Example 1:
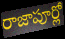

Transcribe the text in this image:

రాజాపూర్లో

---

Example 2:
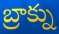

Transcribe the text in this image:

బ్రాక్ను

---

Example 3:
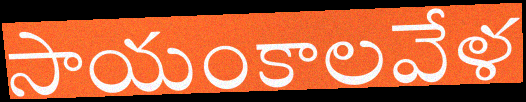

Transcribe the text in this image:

సాయంకాలవేళ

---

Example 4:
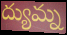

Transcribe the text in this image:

ద్యుమ్న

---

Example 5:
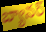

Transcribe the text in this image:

బ్యానర్